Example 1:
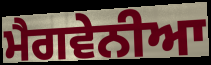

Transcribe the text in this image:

ਮੈਗਵੇਨੀਆ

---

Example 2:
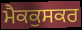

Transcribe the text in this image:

ਮੈਕਕੁਸਕਰ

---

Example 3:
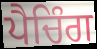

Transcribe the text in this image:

ਪੈਚਿੰਗ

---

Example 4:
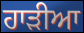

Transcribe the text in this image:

ਹਾੜੀਆ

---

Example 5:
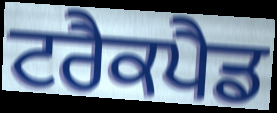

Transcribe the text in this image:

ਟਰੈਕਪੈਡ